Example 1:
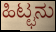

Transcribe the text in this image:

ಹಿಟ್ಟನು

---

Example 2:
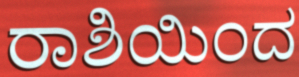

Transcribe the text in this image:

ರಾಶಿಯಿಂದ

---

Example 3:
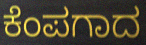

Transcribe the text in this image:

ಕೆಂಪಗಾದ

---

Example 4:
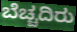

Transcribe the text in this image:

ಬೆಚ್ಚದಿರು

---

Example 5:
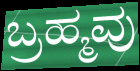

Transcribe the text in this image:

ಬ್ರಹ್ಮವು